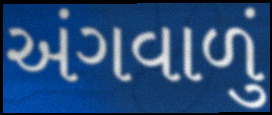
અંગવાળું